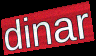
dinar